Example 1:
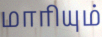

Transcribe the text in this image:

மாரியும்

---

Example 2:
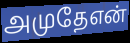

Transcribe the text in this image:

அமுதேஎன்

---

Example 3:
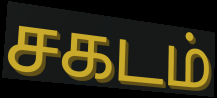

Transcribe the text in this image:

சகடம்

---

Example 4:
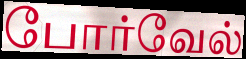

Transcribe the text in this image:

போர்வேல்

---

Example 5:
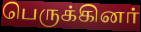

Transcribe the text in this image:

பெருக்கினர்